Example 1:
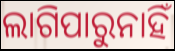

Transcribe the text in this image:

ଲାଗିପାରୁନାହିଁ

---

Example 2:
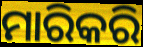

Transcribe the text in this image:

ମାରିକରି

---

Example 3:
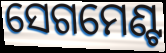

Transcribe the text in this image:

ସେଗମେଣ୍ଟ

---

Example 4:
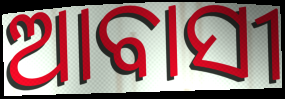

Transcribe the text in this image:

ଆବାସୀ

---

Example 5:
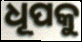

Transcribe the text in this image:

ଧୂପକୁ